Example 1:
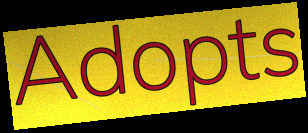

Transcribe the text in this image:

Adopts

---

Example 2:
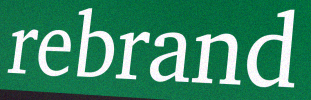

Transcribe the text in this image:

rebrand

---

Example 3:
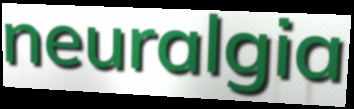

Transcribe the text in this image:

neuralgia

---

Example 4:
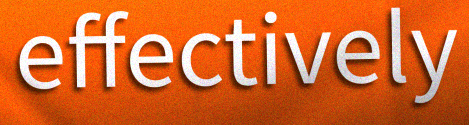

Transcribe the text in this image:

effectively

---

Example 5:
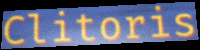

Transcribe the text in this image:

Clitoris